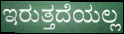
ಇರುತ್ತದೆಯಲ್ಲ